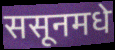
ससूनमधे